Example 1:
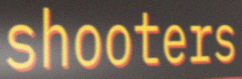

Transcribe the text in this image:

shooters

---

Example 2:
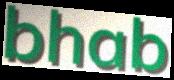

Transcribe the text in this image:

bhab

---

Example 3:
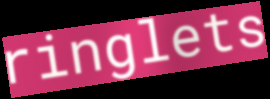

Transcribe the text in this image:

ringlets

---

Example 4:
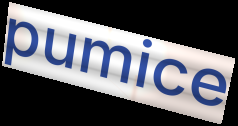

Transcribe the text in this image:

pumice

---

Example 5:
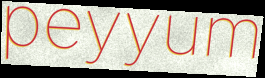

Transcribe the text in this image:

peyyum